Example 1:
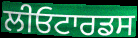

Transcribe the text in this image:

ਲੀਓਟਾਰਡਸ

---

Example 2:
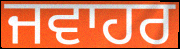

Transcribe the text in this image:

ਜਵਾਹਰ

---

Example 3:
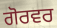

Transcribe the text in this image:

ਗੋਰਵਰ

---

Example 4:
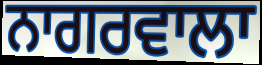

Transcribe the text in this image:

ਨਾਗਰਵਾਲਾ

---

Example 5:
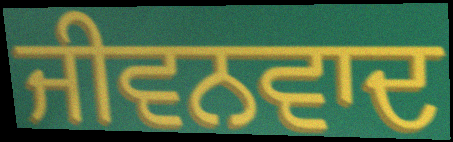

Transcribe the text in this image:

ਜੀਵਨਵਾਦ